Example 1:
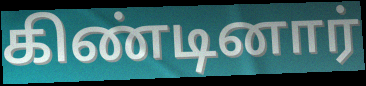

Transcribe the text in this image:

கிண்டினார்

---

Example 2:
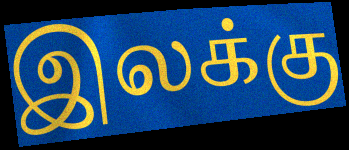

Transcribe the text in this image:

இலக்கு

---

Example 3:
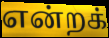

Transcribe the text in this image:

என்றக்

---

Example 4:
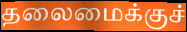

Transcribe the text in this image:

தலைமைக்குச்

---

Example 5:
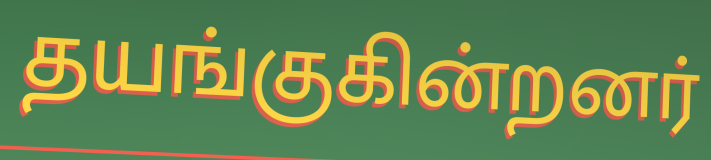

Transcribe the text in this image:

தயங்குகின்றனர்